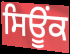
ਸਿਊਂਕ